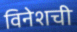
विनेशची